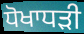
ਧੋਖਾਧਡ਼ੀ